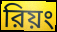
রিয়ং